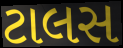
ટાલસ